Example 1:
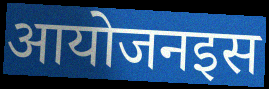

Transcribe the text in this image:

आयोजनइस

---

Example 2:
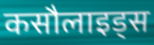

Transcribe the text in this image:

कसौलाइड्स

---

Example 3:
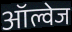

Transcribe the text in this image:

ऑल्वेज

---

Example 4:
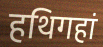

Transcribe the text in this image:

हथिगहां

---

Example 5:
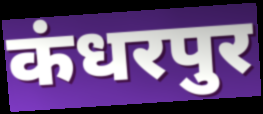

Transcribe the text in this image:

कंधरपुर